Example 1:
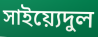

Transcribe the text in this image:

সাইয়্যেদুল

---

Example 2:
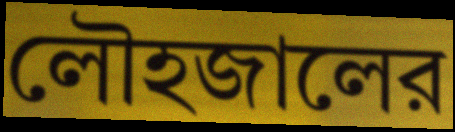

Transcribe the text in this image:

লৌহজালের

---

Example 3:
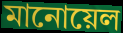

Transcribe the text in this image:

মানোয়েল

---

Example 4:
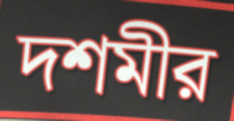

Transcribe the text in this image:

দশমীর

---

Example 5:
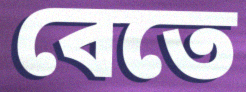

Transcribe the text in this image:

বেতে